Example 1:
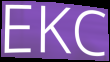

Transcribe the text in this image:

EKC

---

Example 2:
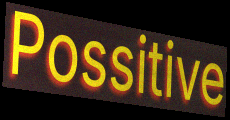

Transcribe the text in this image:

Possitive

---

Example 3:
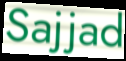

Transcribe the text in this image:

Sajjad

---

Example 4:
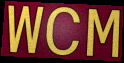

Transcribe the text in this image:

WCM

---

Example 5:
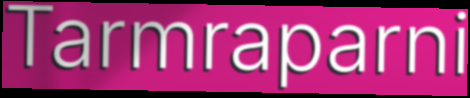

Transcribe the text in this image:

Tarmraparni